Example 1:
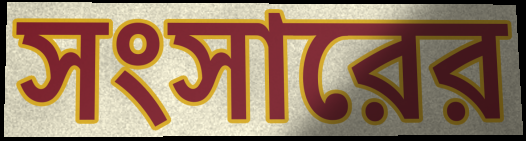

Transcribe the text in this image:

সংসারের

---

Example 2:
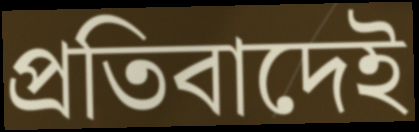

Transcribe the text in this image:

প্রতিবাদেই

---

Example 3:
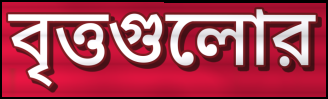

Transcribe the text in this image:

বৃত্তগুলোর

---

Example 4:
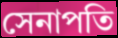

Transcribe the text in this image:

সেনাপতি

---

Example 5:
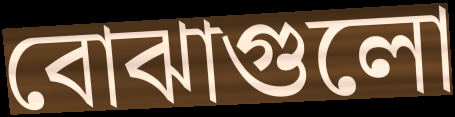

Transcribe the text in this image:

বোঝাগুলো